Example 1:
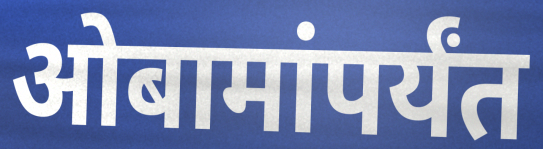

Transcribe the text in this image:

ओबामांपर्यंत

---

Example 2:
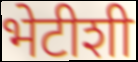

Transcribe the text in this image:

भेटीशी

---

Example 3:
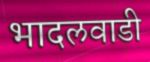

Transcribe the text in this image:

भादलवाडी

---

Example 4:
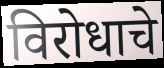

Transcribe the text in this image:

विरोधाचे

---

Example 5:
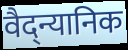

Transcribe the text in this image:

वैद्न्यानिक